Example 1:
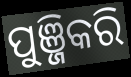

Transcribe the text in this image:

ପୁଞ୍ଜିକରି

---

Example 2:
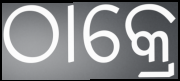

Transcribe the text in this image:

ଠାକ୍ରେ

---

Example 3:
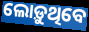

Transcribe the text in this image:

ଲୋଡ଼ୁଥିବେ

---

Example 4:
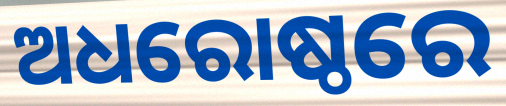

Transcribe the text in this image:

ଅଧରୋଷ୍ଠରେ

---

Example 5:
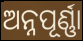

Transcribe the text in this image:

ଅନ୍ନପୂର୍ଣ୍ଣା